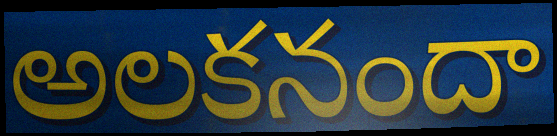
అలకనందా